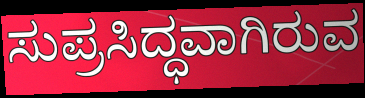
ಸುಪ್ರಸಿದ್ಧವಾಗಿರುವ